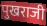
पुखराजी